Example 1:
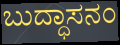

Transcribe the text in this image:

ಬುದ್ಧಾಸನಂ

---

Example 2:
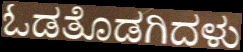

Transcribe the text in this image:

ಓಡತೊಡಗಿದಳು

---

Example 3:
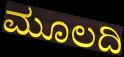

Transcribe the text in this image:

ಮೂಲದಿ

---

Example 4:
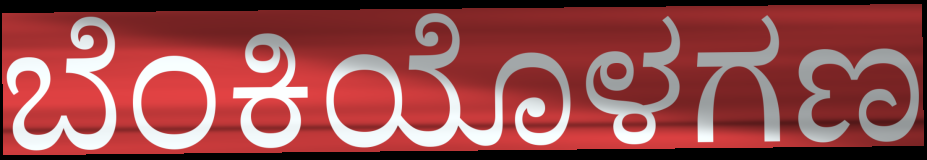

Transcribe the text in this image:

ಬೆಂಕಿಯೊಳಗಣ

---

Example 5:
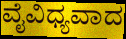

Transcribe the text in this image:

ವೈವಿಧ್ಯವಾದ